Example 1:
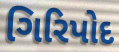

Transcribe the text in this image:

ગિરિપોદ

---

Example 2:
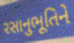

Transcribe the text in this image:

રસાનુભૂતિને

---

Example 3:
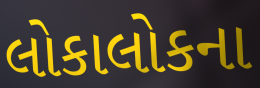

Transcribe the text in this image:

લોકાલોકના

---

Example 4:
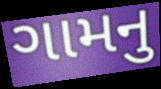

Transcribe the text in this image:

ગામનુ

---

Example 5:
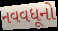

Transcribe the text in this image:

નવવધૂનો